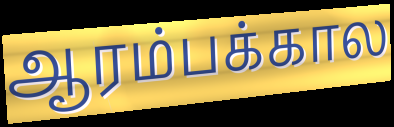
ஆரம்பக்கால